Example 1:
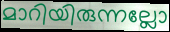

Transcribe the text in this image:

മാറിയിരുന്നല്ലോ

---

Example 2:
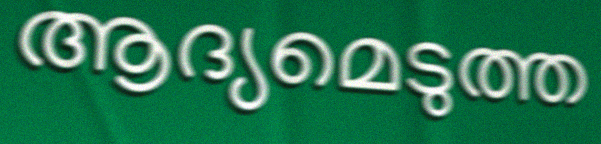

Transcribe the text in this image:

ആദ്യമെടുത്ത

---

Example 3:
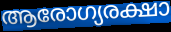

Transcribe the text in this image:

ആരോഗ്യരക്ഷാ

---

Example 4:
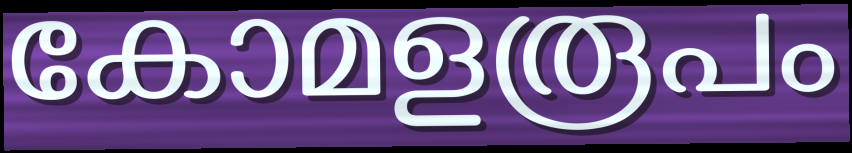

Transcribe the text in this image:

കോമളരൂപം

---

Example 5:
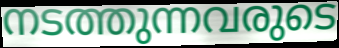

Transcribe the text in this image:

നടത്തുന്നവരുടെ